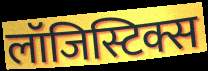
लॉजिस्टिक्स